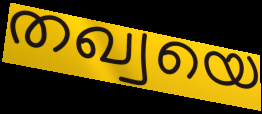
തഖ്വയെ